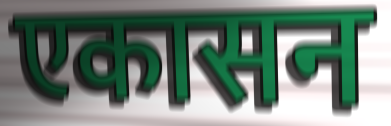
एकासन